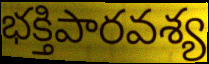
భక్తిపారవశ్య